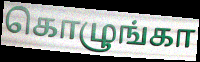
கொழுங்கா